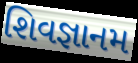
શિવજ્ઞાનમ